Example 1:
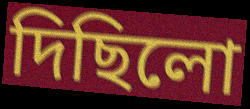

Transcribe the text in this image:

দিছিলো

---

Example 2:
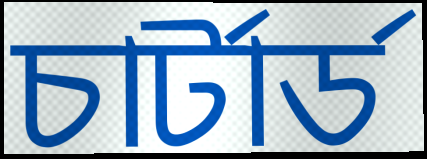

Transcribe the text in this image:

চার্টার্ড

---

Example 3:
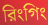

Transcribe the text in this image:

রিংগিং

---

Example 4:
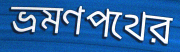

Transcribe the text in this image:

ভ্রমণপথের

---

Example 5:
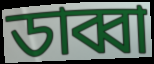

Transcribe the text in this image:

ডাব্বা